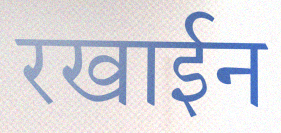
रखाईन